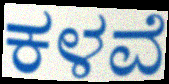
ಕಳವೆ